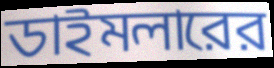
ডাইমলারের